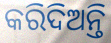
କରିଦିଅନ୍ତି